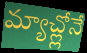
మ్యాచ్ల్లోనే